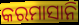
କରମାସାନି